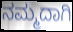
ನಮ್ಮದಾಗಿ